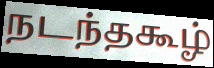
நடந்தகூழ்